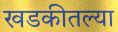
खडकीतल्या